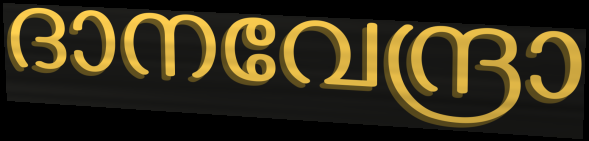
ദാനവേന്ദ്രാ